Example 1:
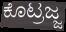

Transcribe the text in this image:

ಕೊಟ್ರಜ್ಜ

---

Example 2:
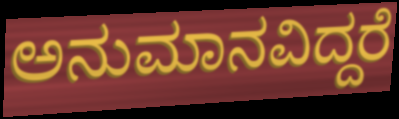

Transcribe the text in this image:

ಅನುಮಾನವಿದ್ದರೆ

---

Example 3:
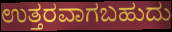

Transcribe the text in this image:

ಉತ್ತರವಾಗಬಹುದು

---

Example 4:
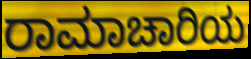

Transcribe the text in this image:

ರಾಮಾಚಾರಿಯ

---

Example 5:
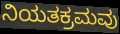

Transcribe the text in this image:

ನಿಯತಕ್ರಮವು